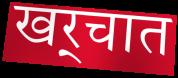
खर्चात